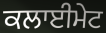
ਕਲਾਈਮੇਟ